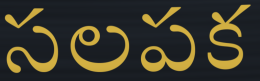
సలపక